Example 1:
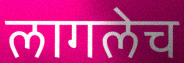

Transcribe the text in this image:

लागलेच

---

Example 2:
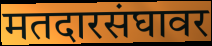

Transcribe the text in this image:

मतदारसंघावर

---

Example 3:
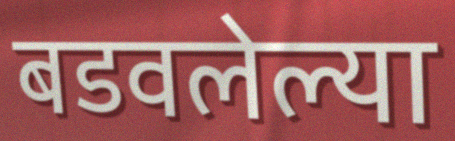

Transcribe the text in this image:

बडवलेल्या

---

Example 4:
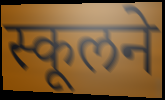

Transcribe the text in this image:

स्कूलने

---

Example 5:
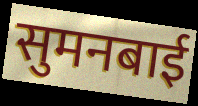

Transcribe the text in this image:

सुमनबाई